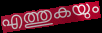
എത്തുകയും